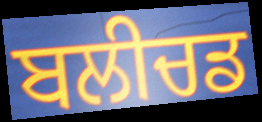
ਬਲੀਚਡ